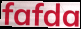
fafda